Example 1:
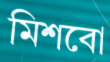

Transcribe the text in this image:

মিশবো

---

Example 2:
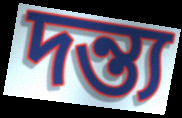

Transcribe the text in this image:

দন্ত্য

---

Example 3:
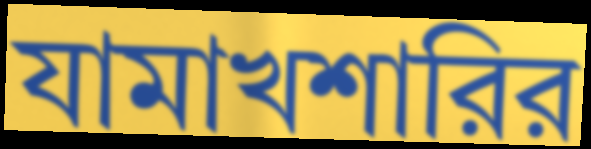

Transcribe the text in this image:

যামাখশারির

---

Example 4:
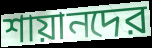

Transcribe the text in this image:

শায়ানদের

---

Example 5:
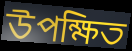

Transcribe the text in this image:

উপক্ষিত